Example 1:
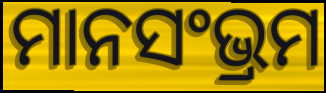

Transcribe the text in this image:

ମାନସଂଭ୍ରମ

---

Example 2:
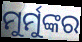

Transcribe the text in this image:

ମୁର୍ମୁଙ୍କର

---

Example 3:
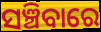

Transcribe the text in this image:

ସଞ୍ଚିବାରେ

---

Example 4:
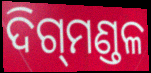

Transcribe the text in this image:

ଦିଗ୍‌ମଣ୍ଡଳ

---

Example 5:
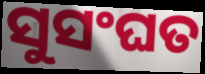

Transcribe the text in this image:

ସୁସଂଘତ